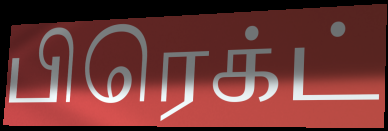
பிரெக்ட்